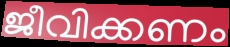
ജീവിക്കണം